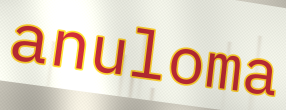
anuloma